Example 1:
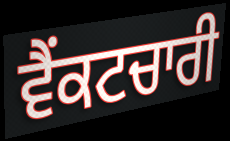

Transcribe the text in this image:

ਵੈਂਕਟਚਾਰੀ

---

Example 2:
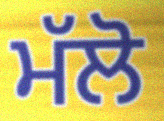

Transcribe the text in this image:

ਮੱਲੋ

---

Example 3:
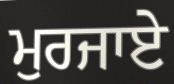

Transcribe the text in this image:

ਮੁਰਜਾਏ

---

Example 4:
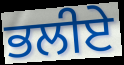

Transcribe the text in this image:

ਭਲੀਏ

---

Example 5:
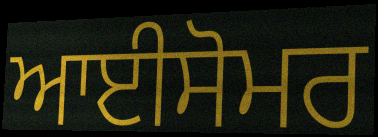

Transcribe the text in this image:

ਆਈਸੋਮਰ